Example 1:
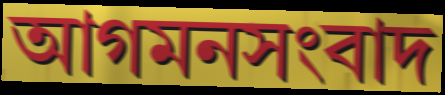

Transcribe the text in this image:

আগমনসংবাদ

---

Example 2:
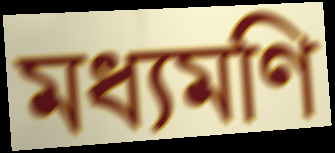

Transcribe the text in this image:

মধ্যমণি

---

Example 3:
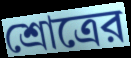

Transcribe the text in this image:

শ্রোত্রের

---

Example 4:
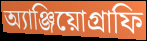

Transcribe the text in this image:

অ্যাঞ্জিয়োগ্রাফি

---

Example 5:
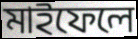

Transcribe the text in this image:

মাইফেলে